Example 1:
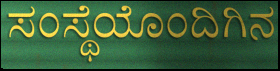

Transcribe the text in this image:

ಸಂಸ್ಥೆಯೊಂದಿಗಿನ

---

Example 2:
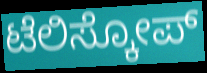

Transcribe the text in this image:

ಟೆಲಿಸ್ಕೋಪ್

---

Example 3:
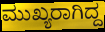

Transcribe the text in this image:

ಮುಖ್ಯರಾಗಿದ್ದ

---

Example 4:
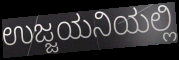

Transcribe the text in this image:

ಉಜ್ಜಯನಿಯಲ್ಲಿ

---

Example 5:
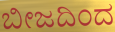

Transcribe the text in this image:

ಬೀಜದಿಂದ